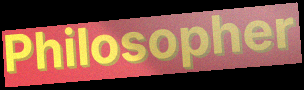
Philosopher